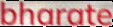
bharate